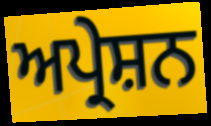
ਅਪ੍ਰੇਸ਼ਨ